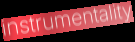
instrumentality